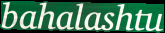
bahalashtu